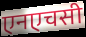
एनएचसी